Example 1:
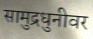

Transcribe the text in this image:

सामुद्रधुनीवर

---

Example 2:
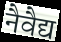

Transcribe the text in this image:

नैवैद्य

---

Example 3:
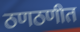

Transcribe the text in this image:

ठणठणीत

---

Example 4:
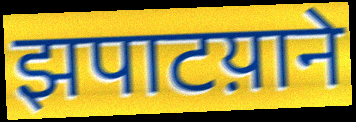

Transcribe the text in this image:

झपाटय़ाने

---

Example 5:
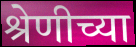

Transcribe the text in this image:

श्रेणीच्या